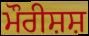
ਮੌਰੀਸ਼ਸ਼